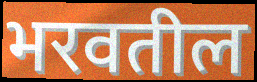
भरवतील